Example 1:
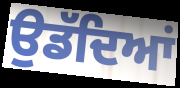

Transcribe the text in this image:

ਉਡੱਦਿਆਂ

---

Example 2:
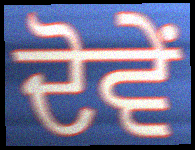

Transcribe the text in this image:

ਦੋਵੇਂ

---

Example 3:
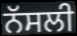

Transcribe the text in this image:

ਨੱਸਲੀ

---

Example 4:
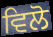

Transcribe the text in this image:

ਵਿਲੋ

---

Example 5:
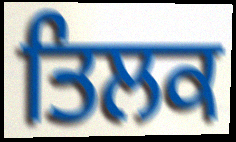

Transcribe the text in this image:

ਤਿਲਕ